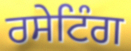
ਰਸੇਟਿੰਗ